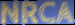
NRCA